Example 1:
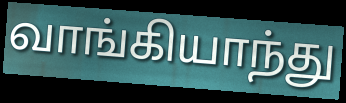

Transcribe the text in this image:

வாங்கியாந்து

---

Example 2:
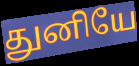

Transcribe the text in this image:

துனியே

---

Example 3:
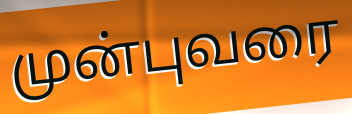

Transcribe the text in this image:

முன்புவரை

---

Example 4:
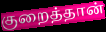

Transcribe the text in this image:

குறைத்தான்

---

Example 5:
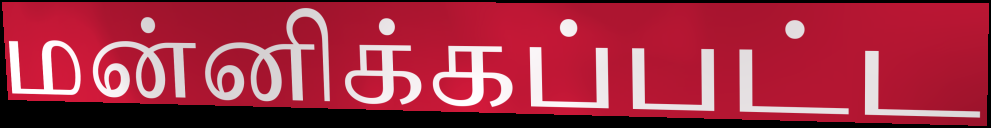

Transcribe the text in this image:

மன்னிக்கப்பட்ட